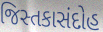
જિસ્તકાસંદોહ